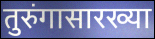
तुरुंगासारख्या